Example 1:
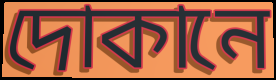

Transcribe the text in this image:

দোকানে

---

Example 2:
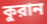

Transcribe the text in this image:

কুরান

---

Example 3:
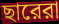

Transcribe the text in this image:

ছারেরা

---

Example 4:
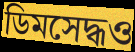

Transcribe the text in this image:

ডিমসেদ্ধও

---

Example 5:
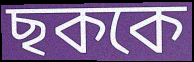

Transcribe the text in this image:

ছককে